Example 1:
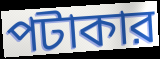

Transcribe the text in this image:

পটাকার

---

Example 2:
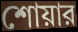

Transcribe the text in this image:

শোয়ার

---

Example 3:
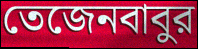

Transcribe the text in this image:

তেজেনবাবুর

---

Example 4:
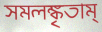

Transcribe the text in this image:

সমলঙ্কৃতাম্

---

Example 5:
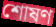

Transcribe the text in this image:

শোষণ